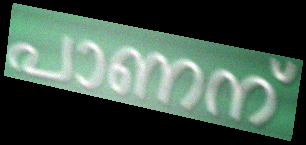
പാണന്